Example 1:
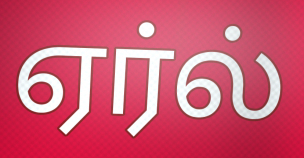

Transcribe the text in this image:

ஏர்ல்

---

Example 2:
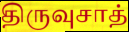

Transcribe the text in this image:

திருவுசாத்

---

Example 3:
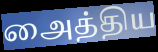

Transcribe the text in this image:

அைத்திய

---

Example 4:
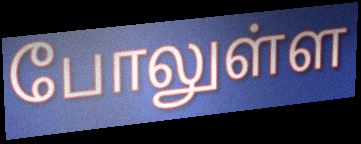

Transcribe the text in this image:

போலுள்ள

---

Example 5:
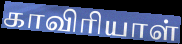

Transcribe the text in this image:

காவிரியாள்